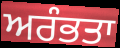
ਅਰੰਭਤਾ